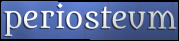
periosteum